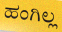
ಹಂಗಿಲ್ಲ